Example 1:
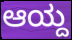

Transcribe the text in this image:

ಆಯ್ದ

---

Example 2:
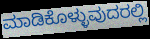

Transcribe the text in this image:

ಮಾಡಿಕೊಳ್ಳುವುದರಲ್ಲಿ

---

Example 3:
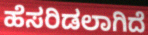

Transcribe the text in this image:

ಹೆಸರಿಡಲಾಗಿದೆ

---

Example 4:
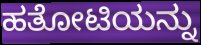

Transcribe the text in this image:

ಹತೋಟಿಯನ್ನು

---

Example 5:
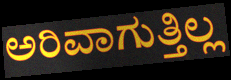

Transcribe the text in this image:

ಅರಿವಾಗುತ್ತಿಲ್ಲ